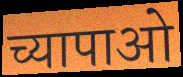
च्यापाओ